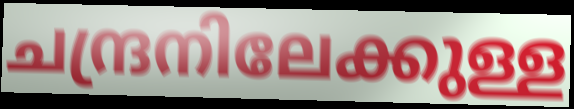
ചന്ദ്രനിലേക്കുള്ള